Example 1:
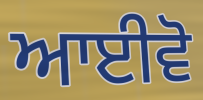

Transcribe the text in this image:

ਆਈਵੋ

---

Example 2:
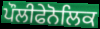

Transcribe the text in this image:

ਪੌਲੀਫੇਨੋਲਿਕ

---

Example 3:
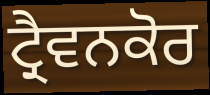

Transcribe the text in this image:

ਟ੍ਰੈਵਨਕੋਰ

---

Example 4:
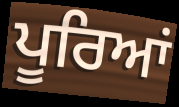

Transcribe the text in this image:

ਪੂਰਿਆਂ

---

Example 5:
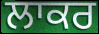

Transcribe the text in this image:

ਲਾਕਰ